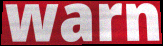
warn